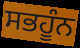
ਸਭਹੂੰਨ